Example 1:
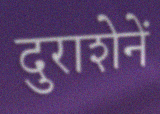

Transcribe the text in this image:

दुराशेनें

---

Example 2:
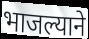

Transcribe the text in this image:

भाजल्याने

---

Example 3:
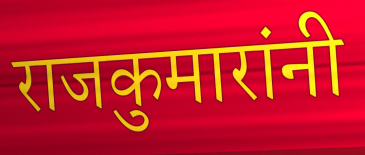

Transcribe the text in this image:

राजकुमारांनी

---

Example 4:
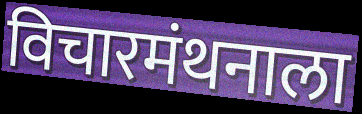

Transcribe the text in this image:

विचारमंथनाला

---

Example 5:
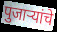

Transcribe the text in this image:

पुजाऱ्यांचे